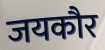
जयकौर